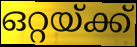
ഒറ്റയ്ക്ക്